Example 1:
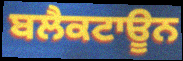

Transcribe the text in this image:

ਬਲੈਕਟਾਊਨ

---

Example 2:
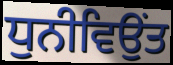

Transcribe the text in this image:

ਧੁਨੀਵਿਉਂਤ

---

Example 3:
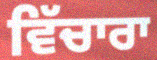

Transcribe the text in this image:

ਵਿੱਚਾਰਾ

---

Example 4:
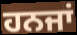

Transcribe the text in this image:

ਹਨਜਾਂ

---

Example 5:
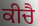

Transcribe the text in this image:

ਕੀਚੈ